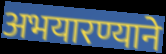
अभयारण्याने